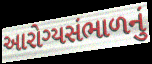
આરોગ્યસંભાળનું